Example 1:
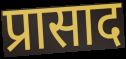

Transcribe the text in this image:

प्रासाद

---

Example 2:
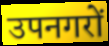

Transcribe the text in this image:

उपनगरों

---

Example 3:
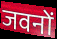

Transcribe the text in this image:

जवनों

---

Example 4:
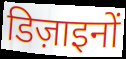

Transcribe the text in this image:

डिज़ाइनों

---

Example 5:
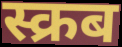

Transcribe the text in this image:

स्क्रब